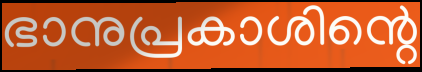
ഭാനുപ്രകാശിന്റെ